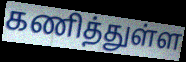
கணித்துள்ள